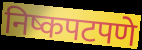
निष्कपटपणे